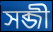
সব্জী